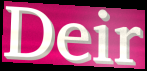
Deir